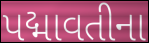
પદ્માવતીના